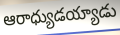
ఆరాధ్యుడయ్యాడు